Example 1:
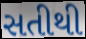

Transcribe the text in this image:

સતીથી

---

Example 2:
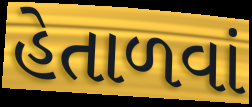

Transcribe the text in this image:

હેતાળવાં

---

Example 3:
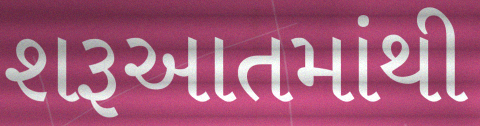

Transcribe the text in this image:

શરૂઆતમાંથી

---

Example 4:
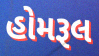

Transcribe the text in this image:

હોમરૂલ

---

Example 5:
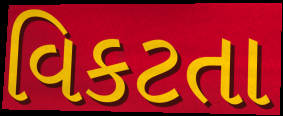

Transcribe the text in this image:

વિકટતા